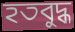
হতবুদ্ধ